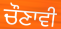
ਚੌਣਾਵੀ